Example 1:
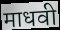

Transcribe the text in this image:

माधवी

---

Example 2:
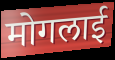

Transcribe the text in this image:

मोगलाई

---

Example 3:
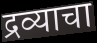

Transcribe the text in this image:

द्रव्याचा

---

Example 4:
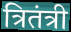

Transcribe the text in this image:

त्रितंत्री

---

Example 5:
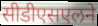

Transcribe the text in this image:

सीडीएसएलने